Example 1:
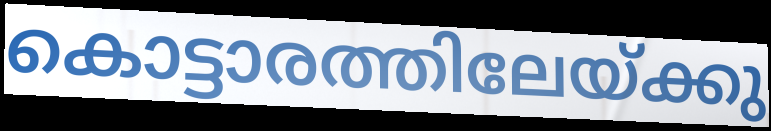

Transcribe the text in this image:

കൊട്ടാരത്തിലേയ്ക്കു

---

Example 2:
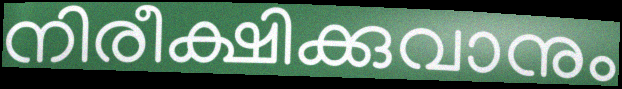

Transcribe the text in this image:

നിരീക്ഷിക്കുവാനും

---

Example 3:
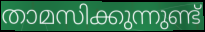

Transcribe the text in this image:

താമസിക്കുന്നുണ്ട്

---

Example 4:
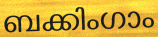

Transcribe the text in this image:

ബക്കിംഗാം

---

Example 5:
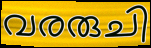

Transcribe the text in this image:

വരരുചി